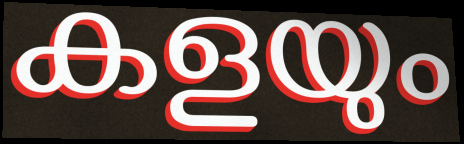
കളയും